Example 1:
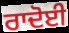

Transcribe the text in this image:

ਰਾਦੋਈ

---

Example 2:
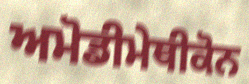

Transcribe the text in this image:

ਅਮੋਡੀਮੇਥੀਕੋਨ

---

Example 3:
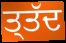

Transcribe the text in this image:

ਤ੍ਤੱਦ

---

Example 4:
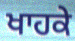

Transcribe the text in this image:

ਖਾਹਕੇ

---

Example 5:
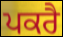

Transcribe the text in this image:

ਪਕਰੈ